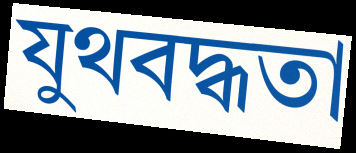
যুথবদ্ধতা